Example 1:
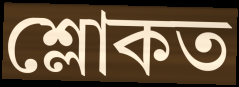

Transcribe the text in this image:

শ্লোকত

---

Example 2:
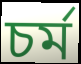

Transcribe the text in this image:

চৰ্ম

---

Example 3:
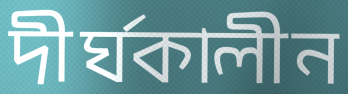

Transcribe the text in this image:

দীৰ্ঘকালীন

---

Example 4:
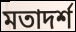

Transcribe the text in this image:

মতাদৰ্শ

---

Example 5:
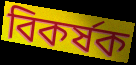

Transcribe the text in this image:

বিকৰ্ষক